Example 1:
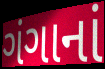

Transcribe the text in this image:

ગંગાનાં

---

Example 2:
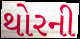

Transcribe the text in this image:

થોરની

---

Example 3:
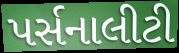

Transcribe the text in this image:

પર્સનાલીટી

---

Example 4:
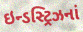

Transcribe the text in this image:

ઇન્ડસ્ટ્રિઝનાં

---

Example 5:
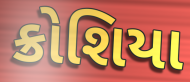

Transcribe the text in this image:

ક્રોશિયા